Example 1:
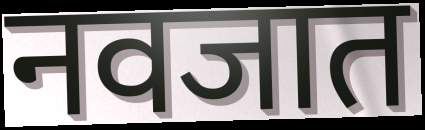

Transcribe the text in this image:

नवजात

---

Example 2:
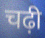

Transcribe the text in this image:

चढ़ी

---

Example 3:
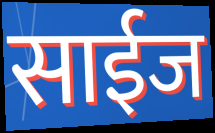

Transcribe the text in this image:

साईज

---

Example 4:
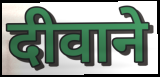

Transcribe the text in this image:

दीवाने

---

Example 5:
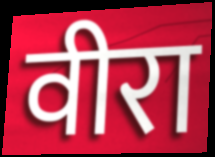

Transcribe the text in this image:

वीरा